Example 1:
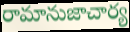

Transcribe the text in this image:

రామానుజాచార్య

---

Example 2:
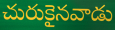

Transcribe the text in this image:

చురుకైనవాడు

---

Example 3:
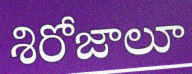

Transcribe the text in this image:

శిరోజాలూ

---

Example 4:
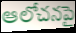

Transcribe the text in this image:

ఆలోచనపై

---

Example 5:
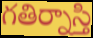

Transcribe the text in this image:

గతిర్నాస్తి